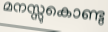
മനസ്സുകൊണ്ടു